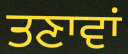
ਤਣਾਵਾਂ